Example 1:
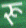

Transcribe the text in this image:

रू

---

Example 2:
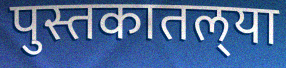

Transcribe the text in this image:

पुस्तकातल्या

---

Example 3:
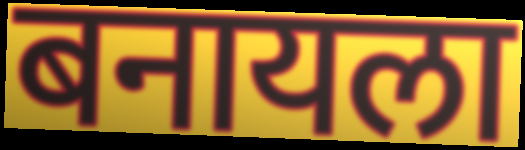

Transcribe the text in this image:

बनायला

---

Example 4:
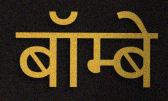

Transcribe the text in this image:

बॉम्बे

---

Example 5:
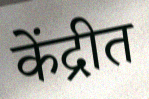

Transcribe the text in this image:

केंद्रीत